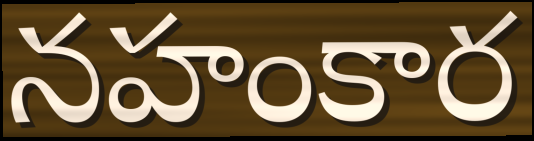
నహంకార